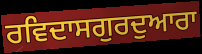
ਰਵਿਦਾਸਗੁਰਦੁਆਰਾ